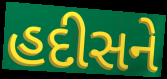
હદીસને